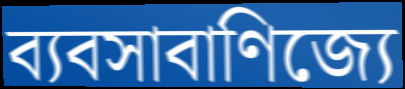
ব্যবসাবাণিজ্যে